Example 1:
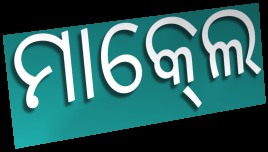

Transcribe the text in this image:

ମାକ୍‍ଲେ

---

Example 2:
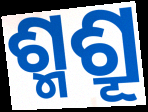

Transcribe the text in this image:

ଶ୍ମଶ୍ରୂ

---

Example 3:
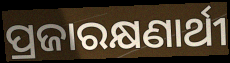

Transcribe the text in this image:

ପ୍ରଜାରକ୍ଷଣାର୍ଥୀ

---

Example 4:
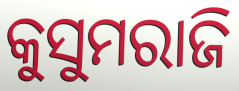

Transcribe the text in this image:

କୁସୁମରାଜି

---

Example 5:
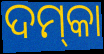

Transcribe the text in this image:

ଦମ୍‌କା